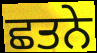
ਛਤਨੇ